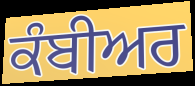
ਕੰਬੀਅਰ